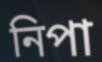
নিপা